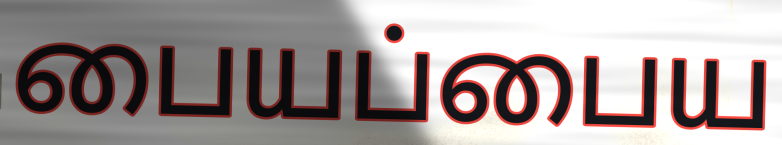
பையப்பைய